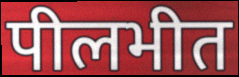
पीलभीत